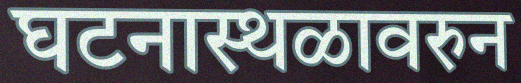
घटनास्थळावरुन